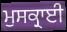
ਮੁਸਕ੍ਰਾਈ